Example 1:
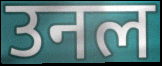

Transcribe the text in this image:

उनल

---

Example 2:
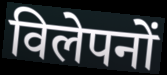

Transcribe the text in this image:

विलेपनों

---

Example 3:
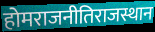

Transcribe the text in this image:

होमराजनीतिराजस्थान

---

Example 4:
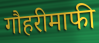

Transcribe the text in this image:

गौहरीमाफी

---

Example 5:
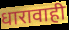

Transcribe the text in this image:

धारावाही